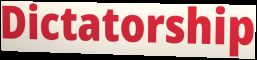
Dictatorship